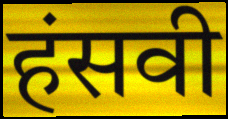
हंसवी